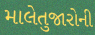
માલેતુજારોની